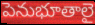
పెనుభూతాలై